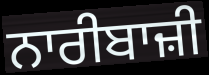
ਨਾਰੀਬਾਜ਼ੀ